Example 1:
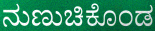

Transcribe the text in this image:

ನುಣುಚಿಕೊಂಡ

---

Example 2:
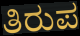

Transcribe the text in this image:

ತಿರುಪ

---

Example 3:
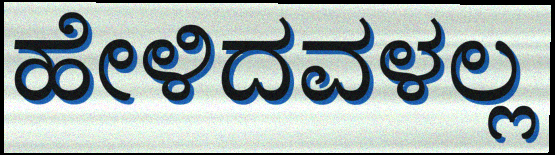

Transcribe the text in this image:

ಹೇಳಿದವಳಲ್ಲ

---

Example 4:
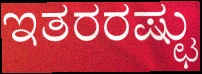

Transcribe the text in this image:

ಇತರರಷ್ಟು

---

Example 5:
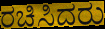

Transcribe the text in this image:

ರಚಿಸಿದರು